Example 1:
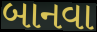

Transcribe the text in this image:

બાનવા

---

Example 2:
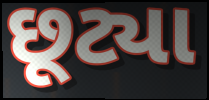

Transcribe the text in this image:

છૂટ્યા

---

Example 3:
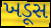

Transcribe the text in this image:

ખડૂસ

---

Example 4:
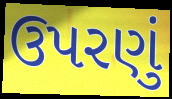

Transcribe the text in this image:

ઉપરણું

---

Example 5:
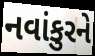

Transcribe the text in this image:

નવાંકુરને